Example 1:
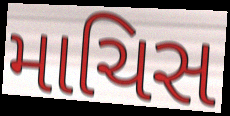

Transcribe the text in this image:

માચિસ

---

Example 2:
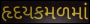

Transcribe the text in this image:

હૃદયકમળમાં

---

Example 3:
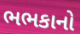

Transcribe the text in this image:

ભભકાનો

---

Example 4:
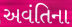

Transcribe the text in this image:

અવંતિના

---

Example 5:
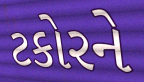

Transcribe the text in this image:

ટકોરને